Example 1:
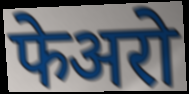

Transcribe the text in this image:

फेअरो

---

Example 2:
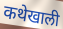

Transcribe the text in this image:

कथेखाली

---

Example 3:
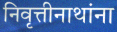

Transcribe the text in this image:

निवृत्तीनाथांना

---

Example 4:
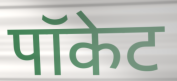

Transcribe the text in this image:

पॉकेट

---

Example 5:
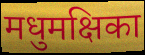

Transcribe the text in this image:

मधुमक्षिका